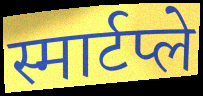
स्मार्टप्ले